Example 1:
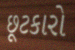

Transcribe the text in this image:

છૂટકારો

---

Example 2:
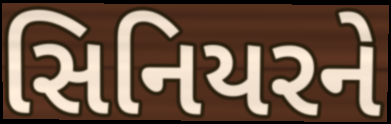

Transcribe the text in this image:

સિનિયરને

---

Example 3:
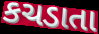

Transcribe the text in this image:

કચડાતા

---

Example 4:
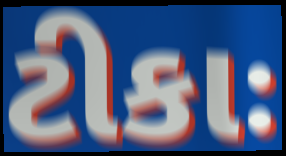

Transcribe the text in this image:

ટીકાઃ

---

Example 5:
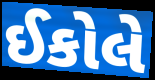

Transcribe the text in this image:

ઈકોલે